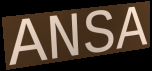
ANSA